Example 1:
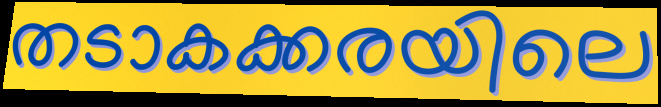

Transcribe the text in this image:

തടാകക്കരയിലെ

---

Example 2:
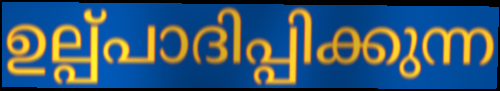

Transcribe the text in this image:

ഉല്പ്പാദിപ്പിക്കുന്ന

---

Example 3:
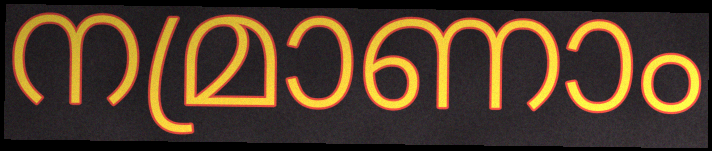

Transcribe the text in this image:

നമ്രാണാം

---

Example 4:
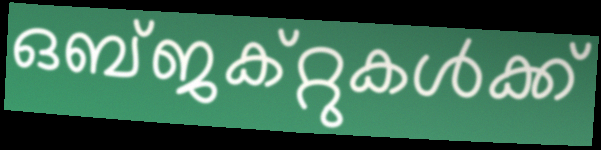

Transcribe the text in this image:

ഒബ്ജക്റ്റുകൾക്ക്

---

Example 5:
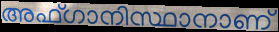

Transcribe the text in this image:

അഫ്ഗാനിസ്ഥാനാണ്